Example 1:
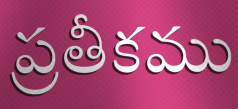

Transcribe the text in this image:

ప్రతీకము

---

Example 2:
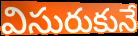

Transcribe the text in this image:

విసురుకునే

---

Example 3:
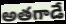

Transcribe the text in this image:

అతగాడే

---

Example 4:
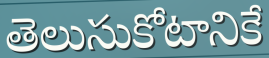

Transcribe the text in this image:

తెలుసుకోటానికే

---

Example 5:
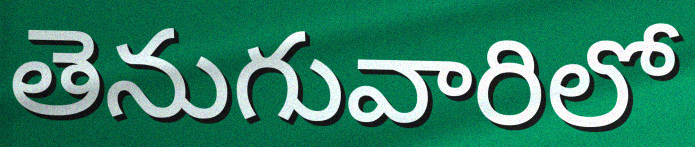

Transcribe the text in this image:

తెనుగువారిలో